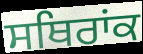
ਸਥਿਰਾਂਕ